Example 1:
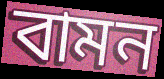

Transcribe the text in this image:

বামন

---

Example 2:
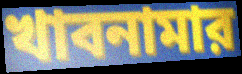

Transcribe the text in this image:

খাবনামার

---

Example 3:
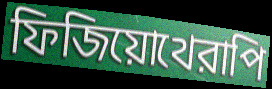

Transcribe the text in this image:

ফিজিয়োথেরাপি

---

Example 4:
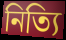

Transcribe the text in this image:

নিত্যি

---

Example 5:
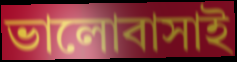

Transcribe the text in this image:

ভালোবাসাই